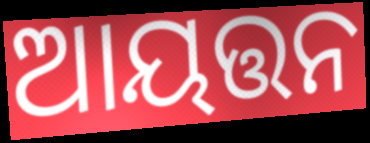
ଆୟତ୍ତନ